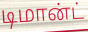
டிமான்ட்